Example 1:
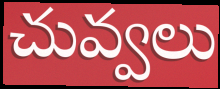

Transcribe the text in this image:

చువ్వలు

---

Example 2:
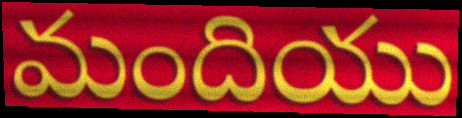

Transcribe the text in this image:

మందియు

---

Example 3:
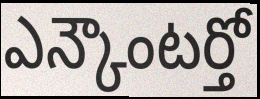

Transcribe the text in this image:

ఎన్కౌంటర్తో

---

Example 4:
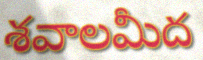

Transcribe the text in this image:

శవాలమీద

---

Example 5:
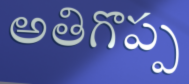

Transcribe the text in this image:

అతిగొప్ప